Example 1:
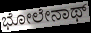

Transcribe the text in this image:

ಭೋಲೇನಾಥ್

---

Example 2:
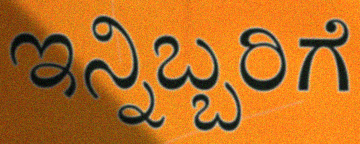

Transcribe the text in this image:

ಇನ್ನಿಬ್ಬರಿಗೆ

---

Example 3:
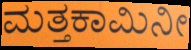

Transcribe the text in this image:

ಮತ್ತಕಾಮಿನೀ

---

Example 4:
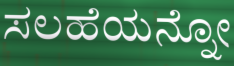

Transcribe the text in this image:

ಸಲಹೆಯನ್ನೋ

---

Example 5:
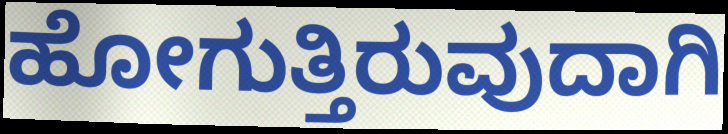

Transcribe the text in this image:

ಹೋಗುತ್ತಿರುವುದಾಗಿ